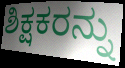
ಶಿಕ್ಷಕರನ್ನು